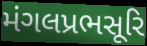
મંગલપ્રભસૂરિ